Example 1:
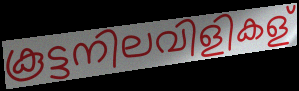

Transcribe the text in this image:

കൂട്ടനിലവിളികള്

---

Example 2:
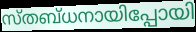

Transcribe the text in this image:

സ്തബ്ധനായിപ്പോയി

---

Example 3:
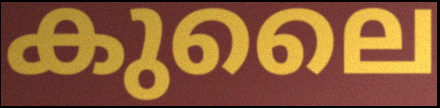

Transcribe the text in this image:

കുലൈ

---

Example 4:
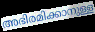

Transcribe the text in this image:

അഭിരമിക്കാനുള്ള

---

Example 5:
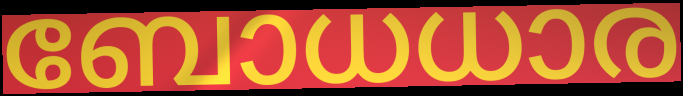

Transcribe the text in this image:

ബോധധാര